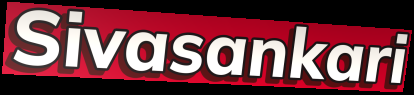
Sivasankari